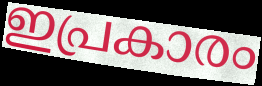
ഇപ്രകാരം